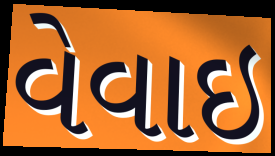
વેવાઇ